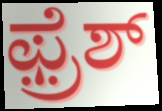
ಫ಼್ರೆಶ್